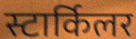
स्टार्किलर